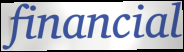
financial